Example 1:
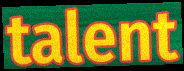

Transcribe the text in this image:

talent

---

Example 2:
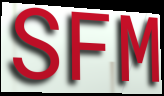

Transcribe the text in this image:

SFM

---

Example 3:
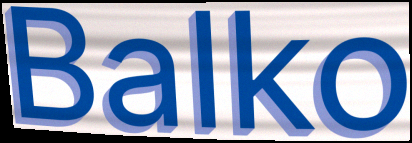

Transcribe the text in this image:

Balko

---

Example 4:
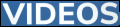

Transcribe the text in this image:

VIDEOS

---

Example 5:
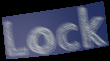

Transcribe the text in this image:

Lock